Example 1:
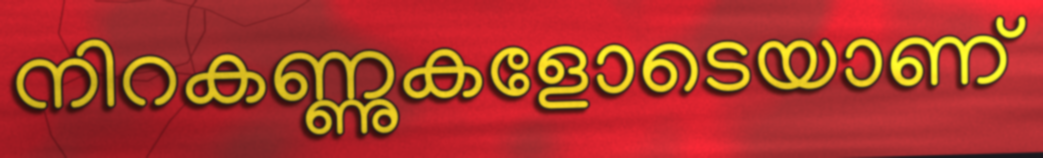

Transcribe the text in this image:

നിറകണ്ണുകളോടെയാണ്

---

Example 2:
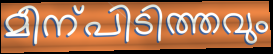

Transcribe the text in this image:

മീന്പിടിത്തവും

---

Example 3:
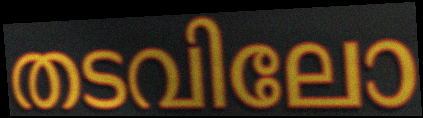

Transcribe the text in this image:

തടവിലോ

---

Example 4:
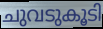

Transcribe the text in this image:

ചുവടുകൂടി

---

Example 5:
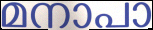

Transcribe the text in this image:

മനാപാ